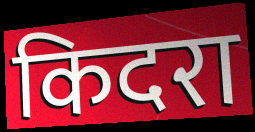
किदरा